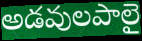
అడవులపాలై